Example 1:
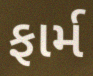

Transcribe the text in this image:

ફાર્મ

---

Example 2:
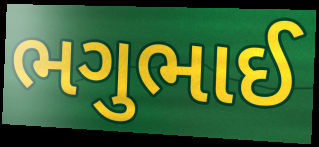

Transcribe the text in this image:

ભગુભાઈ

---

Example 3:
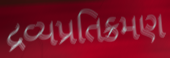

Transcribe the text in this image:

દ્રવ્યપ્રતિક્રમણ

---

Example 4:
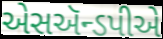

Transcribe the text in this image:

એસઍન્ડપીએ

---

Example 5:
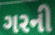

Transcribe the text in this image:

ગરની